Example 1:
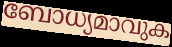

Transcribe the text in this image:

ബോധ്യമാവുക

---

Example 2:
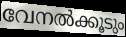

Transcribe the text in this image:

വേനൽക്കൂടും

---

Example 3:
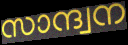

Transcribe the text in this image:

സാന്ദ്വന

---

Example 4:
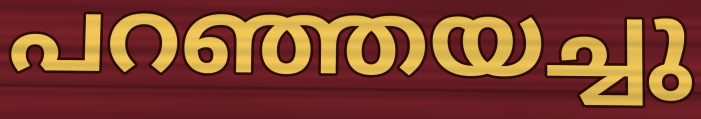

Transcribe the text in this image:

പറഞ്ഞയച്ചു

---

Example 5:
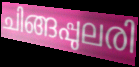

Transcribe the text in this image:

ചിങ്ങപ്പുലരി